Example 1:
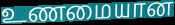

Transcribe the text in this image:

உணமையான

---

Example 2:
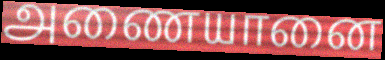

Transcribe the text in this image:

அணையானை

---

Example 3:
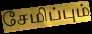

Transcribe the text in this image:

சேமிப்பும்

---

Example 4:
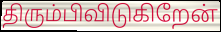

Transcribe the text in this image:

திரும்பிவிடுகிறேன்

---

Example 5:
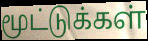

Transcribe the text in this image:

மூட்டுக்கள்